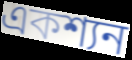
একশ্যন